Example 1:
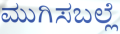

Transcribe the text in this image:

ಮುಗಿಸಬಲ್ಲೆ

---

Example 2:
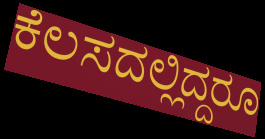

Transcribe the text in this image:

ಕೆಲಸದಲ್ಲಿದ್ದರೂ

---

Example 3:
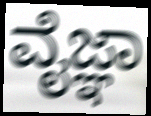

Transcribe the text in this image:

ವೈಜ್ಞಾ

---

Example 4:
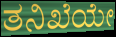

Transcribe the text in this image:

ತನಿಖೆಯೇ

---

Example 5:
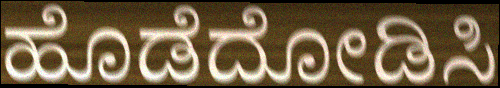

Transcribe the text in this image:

ಹೊಡೆದೋಡಿಸಿ